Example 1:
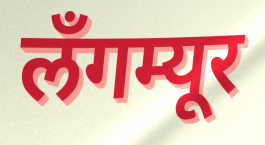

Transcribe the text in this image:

लँगम्यूर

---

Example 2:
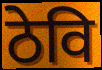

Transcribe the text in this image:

ठेवि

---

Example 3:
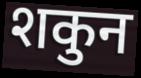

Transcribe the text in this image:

शकुन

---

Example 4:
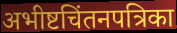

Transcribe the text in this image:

अभीष्टचिंतनपत्रिका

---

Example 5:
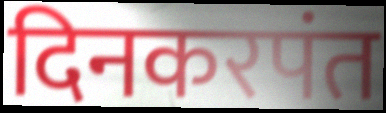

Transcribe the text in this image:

दिनकरपंत